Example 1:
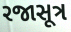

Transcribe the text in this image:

રજાસૂત્ર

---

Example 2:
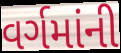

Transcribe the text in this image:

વર્ગમાંની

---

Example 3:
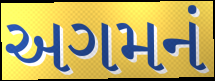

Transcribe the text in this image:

અગમનં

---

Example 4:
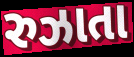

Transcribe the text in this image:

રુઝાતા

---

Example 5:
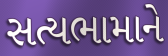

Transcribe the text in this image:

સત્યભામાને